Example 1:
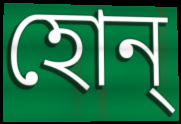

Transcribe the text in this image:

হোন্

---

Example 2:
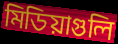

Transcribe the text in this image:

মিডিয়াগুলি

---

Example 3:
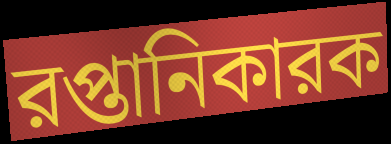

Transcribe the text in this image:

রপ্তানিকারক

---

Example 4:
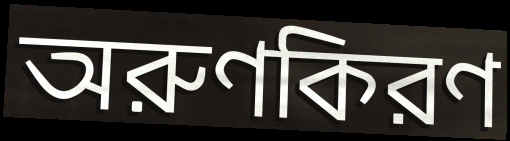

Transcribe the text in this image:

অরুণকিরণ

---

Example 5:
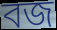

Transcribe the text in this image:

বজ